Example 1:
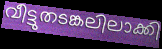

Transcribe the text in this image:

വീട്ടുതടങ്കലിലാക്കി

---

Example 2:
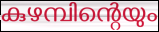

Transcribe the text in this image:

കുഴമ്പിന്റെയും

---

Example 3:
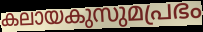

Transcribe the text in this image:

കലായകുസുമപ്രഭം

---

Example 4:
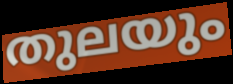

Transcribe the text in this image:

തുലയും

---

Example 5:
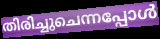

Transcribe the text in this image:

തിരിച്ചുചെന്നപ്പോൾ